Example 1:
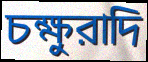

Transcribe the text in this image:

চক্ষুরাদি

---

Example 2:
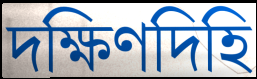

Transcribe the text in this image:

দক্ষিণদিহি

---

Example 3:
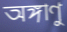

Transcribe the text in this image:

অঙ্গাণু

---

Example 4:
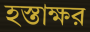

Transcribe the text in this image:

হস্তাক্ষর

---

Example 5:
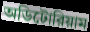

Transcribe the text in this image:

অডিটোরিয়াম